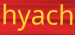
hyach